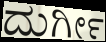
ದುರ್ಗೀ